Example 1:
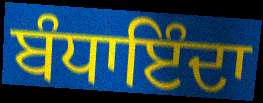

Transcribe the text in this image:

ਬੰਧਾਇੰਦਾ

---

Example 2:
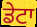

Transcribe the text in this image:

ਡੇਟਾ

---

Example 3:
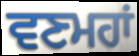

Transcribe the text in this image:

ਵਣਮਹਾਂ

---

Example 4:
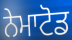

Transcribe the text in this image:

ਨੇਮਾਟੋਡ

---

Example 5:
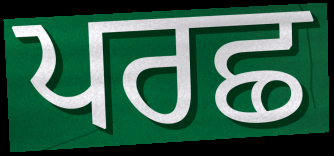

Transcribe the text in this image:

ਪਰਛ